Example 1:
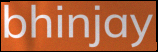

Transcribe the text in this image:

bhinjay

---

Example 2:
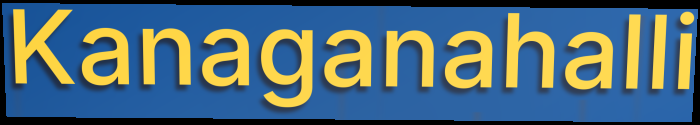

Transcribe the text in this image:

Kanaganahalli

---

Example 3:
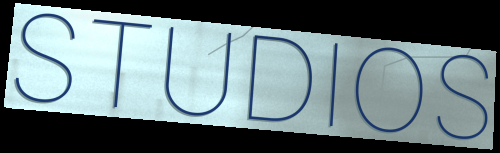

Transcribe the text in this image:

STUDIOS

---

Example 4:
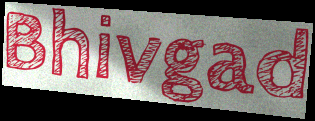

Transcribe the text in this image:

Bhivgad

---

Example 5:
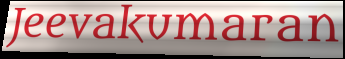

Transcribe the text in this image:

Jeevakumaran